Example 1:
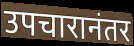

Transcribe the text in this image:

उपचारानंतर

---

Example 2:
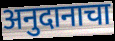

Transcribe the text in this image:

अनुदानाचा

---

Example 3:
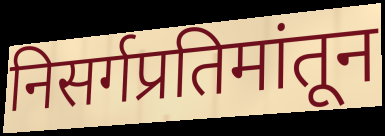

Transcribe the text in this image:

निसर्गप्रतिमांतून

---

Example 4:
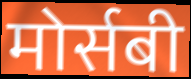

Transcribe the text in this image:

मोर्सबी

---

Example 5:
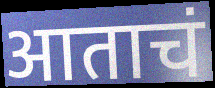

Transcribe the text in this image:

आताचं